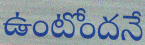
ఉంటోందనే